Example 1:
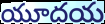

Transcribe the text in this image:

యూదయ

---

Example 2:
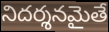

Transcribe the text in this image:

నిదర్శనమైతే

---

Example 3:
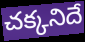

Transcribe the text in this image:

చక్కనిదే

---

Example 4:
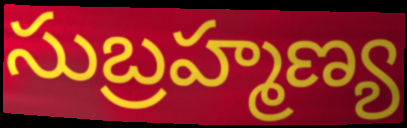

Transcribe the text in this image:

సుబ్రహ్మణ్య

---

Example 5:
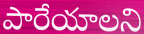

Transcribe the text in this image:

పారేయాలని